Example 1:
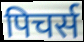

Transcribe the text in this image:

पिचर्स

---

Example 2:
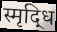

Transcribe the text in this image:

स्मृद्धि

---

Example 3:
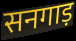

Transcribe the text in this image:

सनगाड़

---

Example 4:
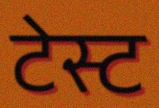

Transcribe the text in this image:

टेस्‍ट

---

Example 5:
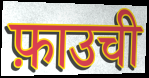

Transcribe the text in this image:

फ़ाउची